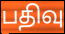
பதிவு